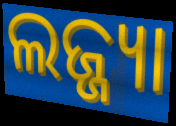
ଲଜ୍ଜ୍ୟା